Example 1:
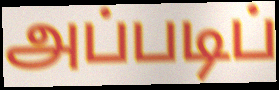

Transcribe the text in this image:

அப்படிப்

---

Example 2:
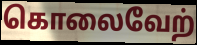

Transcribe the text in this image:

கொலைவேற்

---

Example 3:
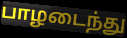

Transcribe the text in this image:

பாழடைந்து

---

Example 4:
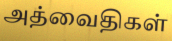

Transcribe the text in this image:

அத்வைதிகள்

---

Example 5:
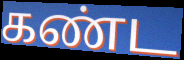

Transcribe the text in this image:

கண்ட